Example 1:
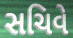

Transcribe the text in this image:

સચિવે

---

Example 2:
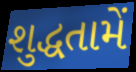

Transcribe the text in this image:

શુદ્ધતામેં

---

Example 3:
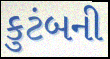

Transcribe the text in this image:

કુટંબની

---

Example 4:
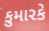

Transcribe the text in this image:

કુમારકે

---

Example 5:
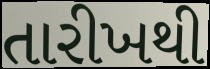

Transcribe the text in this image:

તારીખથી